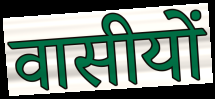
वासीयों